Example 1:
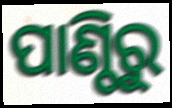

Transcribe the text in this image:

ପାଣ୍ଠିରୁ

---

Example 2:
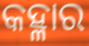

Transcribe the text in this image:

କହ୍ଳାର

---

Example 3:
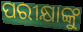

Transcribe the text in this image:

ପରୀକ୍ଷାଙ୍କୁ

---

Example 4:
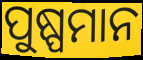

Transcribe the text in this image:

ପୁଷ୍ପମାନ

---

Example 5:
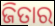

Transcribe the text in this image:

ଜିତାର